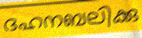
ദഹനബലിക്കു